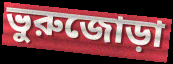
ভুরুজোড়া